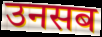
उनसब